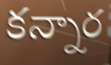
కన్నార